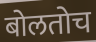
बोलतोच